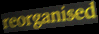
reorganised